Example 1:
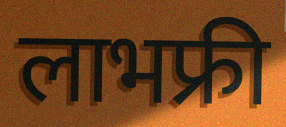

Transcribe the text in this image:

लाभफ्री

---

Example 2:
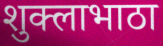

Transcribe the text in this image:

शुक्लाभाठा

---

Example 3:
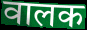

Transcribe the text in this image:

वालक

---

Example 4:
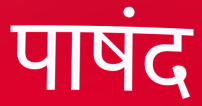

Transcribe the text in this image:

पाषंद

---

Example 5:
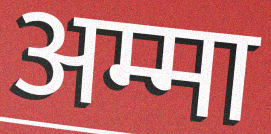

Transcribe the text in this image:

अम्‍मा